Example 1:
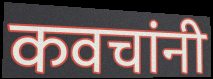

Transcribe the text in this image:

कवचांनी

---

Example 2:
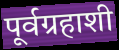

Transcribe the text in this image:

पूर्वग्रहाशी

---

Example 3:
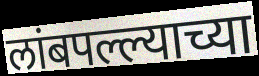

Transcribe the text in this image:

लांबपल्ल्याच्या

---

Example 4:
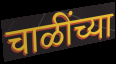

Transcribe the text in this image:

चाळींच्या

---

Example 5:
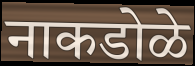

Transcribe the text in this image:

नाकडोळे